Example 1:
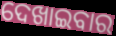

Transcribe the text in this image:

ଦେଖାଇବାର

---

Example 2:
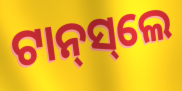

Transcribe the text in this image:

ଟାନ୍‌ସ୍‌ଲେ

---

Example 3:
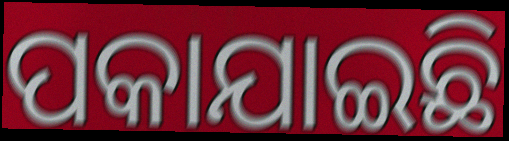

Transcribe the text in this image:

ପକାଯାଇଛି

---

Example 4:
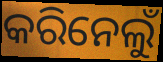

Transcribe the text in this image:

କରିନେଲୁଁ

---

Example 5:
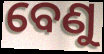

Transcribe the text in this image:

ବେଣୁ